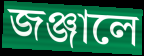
জঞ্জালে